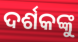
ଦର୍ଶକଙ୍କୁ